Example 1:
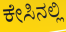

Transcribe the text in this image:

ಕೇಸಿನಲ್ಲಿ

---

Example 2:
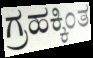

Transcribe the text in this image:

ಗ್ರಹಕ್ಕಿಂತ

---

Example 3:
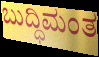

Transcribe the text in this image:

ಬುದ್ಧಿಮಂತ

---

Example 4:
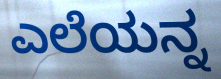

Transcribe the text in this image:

ಎಲೆಯನ್ನ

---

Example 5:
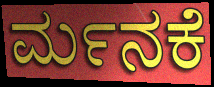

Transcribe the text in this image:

ರ್ಮನಕೆ